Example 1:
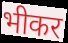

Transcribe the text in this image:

भीकर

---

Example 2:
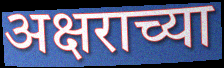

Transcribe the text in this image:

अक्षराच्या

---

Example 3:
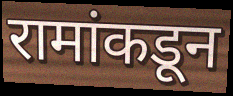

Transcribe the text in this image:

रामांकडून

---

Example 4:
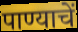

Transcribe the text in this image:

पाण्याचें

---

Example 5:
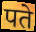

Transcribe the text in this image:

पते